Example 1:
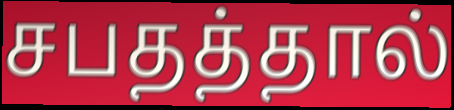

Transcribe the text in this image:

சபதத்தால்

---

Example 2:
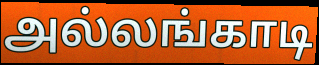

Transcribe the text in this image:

அல்லங்காடி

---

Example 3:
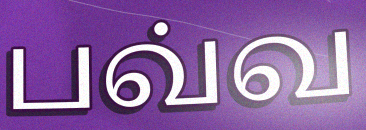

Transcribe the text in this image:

பவ்வ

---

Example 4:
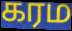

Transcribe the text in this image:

கரம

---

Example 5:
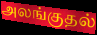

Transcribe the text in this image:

அலங்குதல்